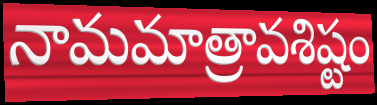
నామమాత్రావశిష్టం